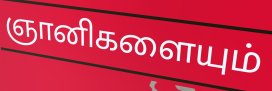
ஞானிகளையும்